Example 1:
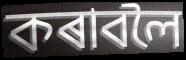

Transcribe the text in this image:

কৰাবলৈ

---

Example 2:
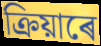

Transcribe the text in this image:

ক্ৰিয়াৰে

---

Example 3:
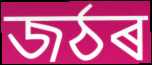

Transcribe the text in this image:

জঠৰ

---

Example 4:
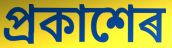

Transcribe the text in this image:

প্ৰকাশেৰ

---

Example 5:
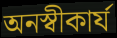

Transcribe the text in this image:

অনস্বীকাৰ্য